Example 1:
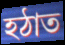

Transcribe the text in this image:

হঠাত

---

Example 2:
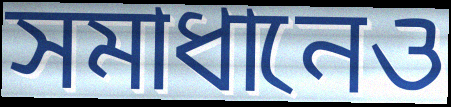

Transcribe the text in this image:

সমাধানেও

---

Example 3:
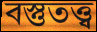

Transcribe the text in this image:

বস্তুতত্ত্ব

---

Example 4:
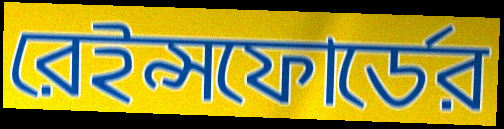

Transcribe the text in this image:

রেইন্সফোর্ডের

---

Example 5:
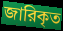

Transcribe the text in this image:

জারিকৃত